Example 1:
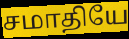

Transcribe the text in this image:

சமாதியே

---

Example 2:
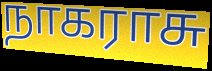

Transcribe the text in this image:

நாகராசு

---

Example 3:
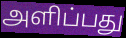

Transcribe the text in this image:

அளிப்பது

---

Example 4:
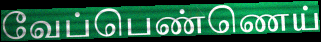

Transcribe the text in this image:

வேப்பெண்ணெய்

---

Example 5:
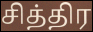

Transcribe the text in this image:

சித்திர